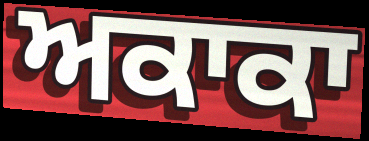
ਅਕਾਕਾ